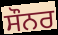
ਸੌਨਰ